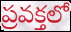
ప్రవక్తలో